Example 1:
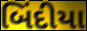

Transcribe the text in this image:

બિંદીયા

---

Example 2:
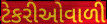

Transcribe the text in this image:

ટેકરીઓવાળી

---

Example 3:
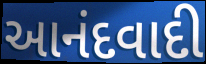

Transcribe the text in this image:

આનંદવાદી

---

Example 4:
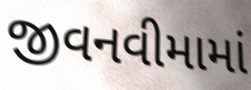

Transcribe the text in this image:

જીવનવીમામાં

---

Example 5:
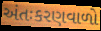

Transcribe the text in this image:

અંતઃકરણવાળો